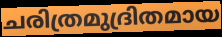
ചരിത്രമുദ്രിതമായ